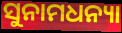
ସୁନାମଧନ୍ୟା